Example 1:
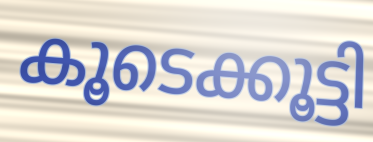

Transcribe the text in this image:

കൂടെക്കൂട്ടി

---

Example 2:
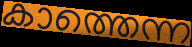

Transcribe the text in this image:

കാത്തെന്ന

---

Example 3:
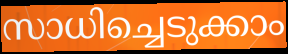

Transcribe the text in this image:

സാധിച്ചെടുക്കാം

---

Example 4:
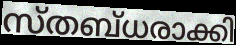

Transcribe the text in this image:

സ്തബ്ധരാക്കി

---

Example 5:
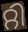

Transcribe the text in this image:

റ്റി